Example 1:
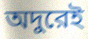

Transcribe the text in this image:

অদুরেই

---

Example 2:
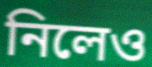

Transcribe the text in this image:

নিলেও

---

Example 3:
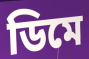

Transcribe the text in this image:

ডিমে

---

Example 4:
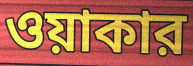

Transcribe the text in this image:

ওয়াকার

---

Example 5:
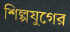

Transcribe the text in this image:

শিল্পযুগের